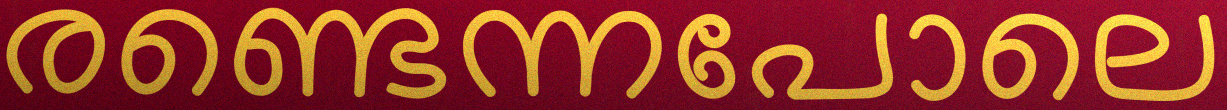
രണ്ടെന്നപോലെ